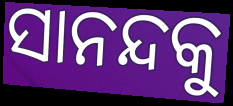
ସାନନ୍ଦକୁ